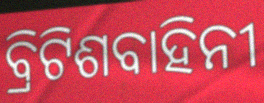
ବ୍ରିଟିଶବାହିନୀ